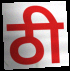
ठी